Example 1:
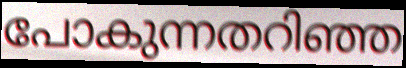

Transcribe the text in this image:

പോകുന്നതറിഞ്ഞ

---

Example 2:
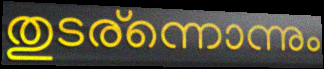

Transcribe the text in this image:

തുടര്ന്നൊന്നും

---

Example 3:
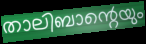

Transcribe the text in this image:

താലിബാന്റെയും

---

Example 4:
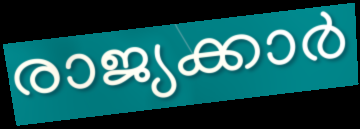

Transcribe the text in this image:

രാജ്യക്കാർ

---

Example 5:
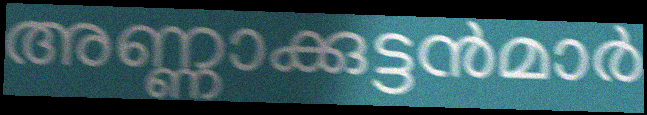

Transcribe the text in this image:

അണ്ണാക്കുട്ടൻമാർ